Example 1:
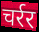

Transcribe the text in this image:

चर्रर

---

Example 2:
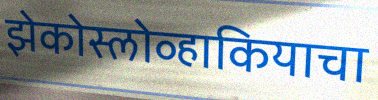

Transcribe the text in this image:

झेकोस्लोव्हाकियाचा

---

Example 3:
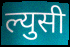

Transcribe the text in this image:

ल्युसी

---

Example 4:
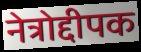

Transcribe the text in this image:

नेत्रोद्दीपक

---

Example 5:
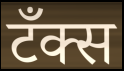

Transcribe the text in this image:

टँक्स